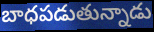
బాధపడుతున్నాడు